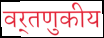
वर्तणुकीय